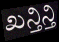
ಖನ್ತಿನ್ತಿ